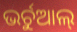
ଭର୍ଚୁଆଲ୍